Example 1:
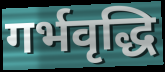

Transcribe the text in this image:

गर्भवृद्धि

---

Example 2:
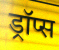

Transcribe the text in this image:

ड्रॉप्स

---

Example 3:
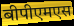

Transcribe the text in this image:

बीपीएमएस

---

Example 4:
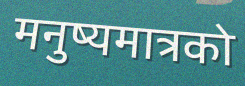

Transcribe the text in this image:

मनुष्यमात्रको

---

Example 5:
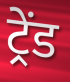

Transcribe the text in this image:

ट्रेंड